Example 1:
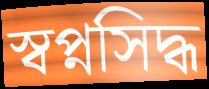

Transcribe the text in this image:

স্বপ্নসিদ্ধ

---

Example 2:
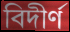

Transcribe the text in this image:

বিদীর্ণ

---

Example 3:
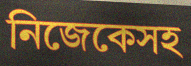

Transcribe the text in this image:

নিজেকেসহ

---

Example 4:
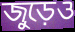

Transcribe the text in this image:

জুড়েও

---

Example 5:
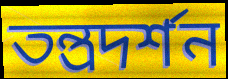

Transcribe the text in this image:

তন্ত্রদর্শন